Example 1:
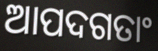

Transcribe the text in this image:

ଆପଦଗତାଂ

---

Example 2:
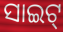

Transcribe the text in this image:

ସାଇଟ୍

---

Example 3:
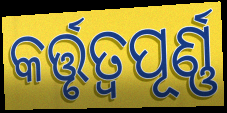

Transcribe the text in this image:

କର୍ତ୍ତୃତ୍ୱପୂର୍ଣ୍ଣ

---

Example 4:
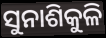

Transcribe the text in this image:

ସୁନାଶିକୁଳି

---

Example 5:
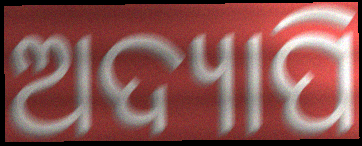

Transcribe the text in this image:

ଅଦ୍ୟାପି